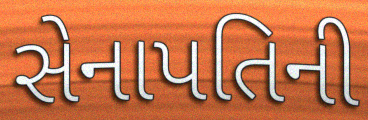
સેનાપતિની